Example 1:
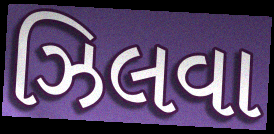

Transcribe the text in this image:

ઝિલવા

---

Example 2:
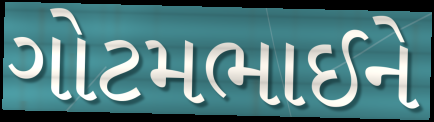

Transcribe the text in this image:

ગોટમભાઈને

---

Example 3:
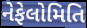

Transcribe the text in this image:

નેફેલોમિતિ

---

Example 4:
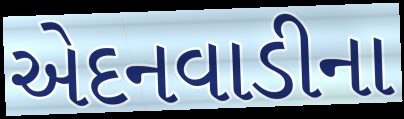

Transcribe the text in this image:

એદનવાડીના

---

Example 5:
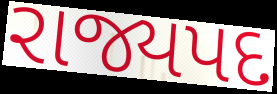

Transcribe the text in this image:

રાજ્યપદ